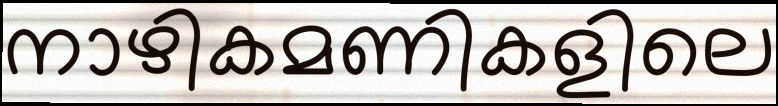
നാഴികമണികളിലെ